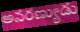
అనరణ్యుడు